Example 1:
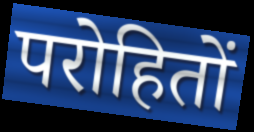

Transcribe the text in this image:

परोहितों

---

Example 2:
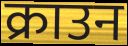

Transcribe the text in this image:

क्राउन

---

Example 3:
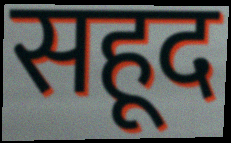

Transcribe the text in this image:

सहूद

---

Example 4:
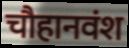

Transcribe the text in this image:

चौहानवंश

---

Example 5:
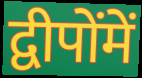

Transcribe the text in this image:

द्वीपोंमें